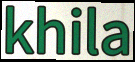
khila